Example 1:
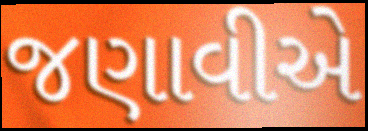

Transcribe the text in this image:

જણાવીએ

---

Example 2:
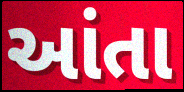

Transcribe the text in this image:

આંતા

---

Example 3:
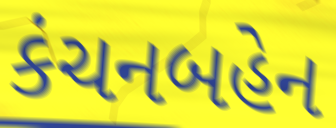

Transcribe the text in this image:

કંચનબહેન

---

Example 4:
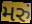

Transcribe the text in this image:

મરું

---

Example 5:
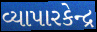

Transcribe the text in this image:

વ્યાપારકેન્દ્ર